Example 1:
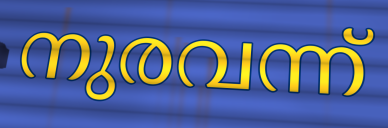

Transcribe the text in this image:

നുരവന്ന്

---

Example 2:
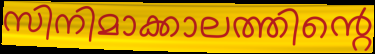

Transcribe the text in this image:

സിനിമാക്കാലത്തിന്റെ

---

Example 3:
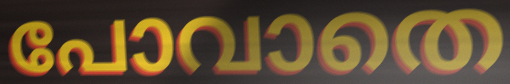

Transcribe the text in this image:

പോവാതെ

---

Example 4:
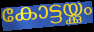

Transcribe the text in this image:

കോട്ടയ്ക്കും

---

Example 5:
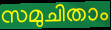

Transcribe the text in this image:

സമുചിതാം